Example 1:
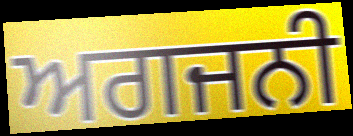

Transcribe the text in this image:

ਅਗਜਨੀ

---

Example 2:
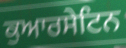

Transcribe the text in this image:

ਕੁਆਰਸੇਟਿਨ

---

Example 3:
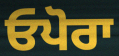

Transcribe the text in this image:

ਓਪੋਰਾ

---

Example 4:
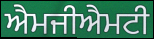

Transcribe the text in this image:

ਐਮਜੀਐਮਟੀ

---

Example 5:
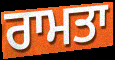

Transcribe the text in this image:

ਰਾਮਤਾ